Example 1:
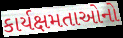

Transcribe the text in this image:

કાર્યક્ષમતાઓનો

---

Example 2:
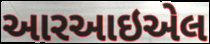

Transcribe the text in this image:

આરઆઇએલ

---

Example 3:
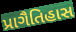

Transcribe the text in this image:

પ્રાગૈતિહાસ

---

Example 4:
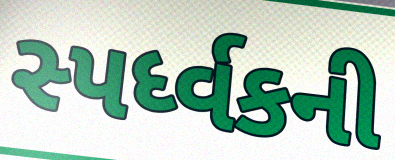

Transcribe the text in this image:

સ્પર્ધ્વકની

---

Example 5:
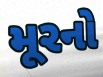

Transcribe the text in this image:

મૂરનો